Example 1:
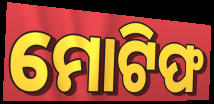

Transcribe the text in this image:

ମୋଟିଫ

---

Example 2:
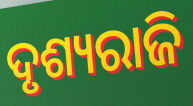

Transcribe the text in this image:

ଦୃଶ୍ୟରାଜି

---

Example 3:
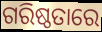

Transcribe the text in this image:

ଗରିଷ୍ଠତାରେ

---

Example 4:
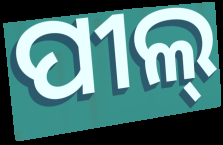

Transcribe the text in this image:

ପୀଲ୍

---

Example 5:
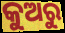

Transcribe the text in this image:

କୁଅରୁ